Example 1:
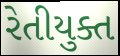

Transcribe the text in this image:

રેતીયુક્ત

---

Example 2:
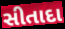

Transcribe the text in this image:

સીતાદા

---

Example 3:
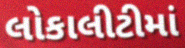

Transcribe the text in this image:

લોકાલીટીમાં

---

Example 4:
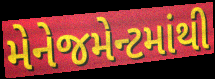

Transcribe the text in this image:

મેનેજમેન્ટમાંથી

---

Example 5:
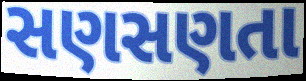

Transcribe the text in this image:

સણસણતા